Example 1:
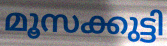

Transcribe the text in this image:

മൂസക്കുട്ടി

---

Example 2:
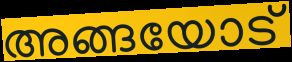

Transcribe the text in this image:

അങ്ങയോട്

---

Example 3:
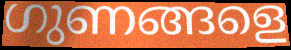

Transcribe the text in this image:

ഗുണങ്ങളെ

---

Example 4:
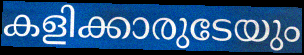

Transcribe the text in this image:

കളിക്കാരുടേയും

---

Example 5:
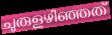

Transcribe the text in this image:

ചുരുളഴിഞ്ഞത്